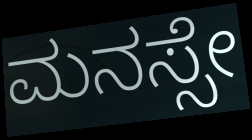
ಮನಸ್ಸೇ